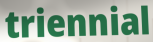
triennial